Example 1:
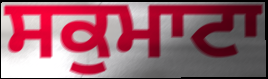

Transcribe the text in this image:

ਸਕੁਮਾਟਾ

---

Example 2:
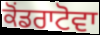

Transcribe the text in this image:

ਕੋਂਡਰਾਟੋਵਾ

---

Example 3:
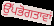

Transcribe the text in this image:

ਉੱਪਭੋਗਤਾਵਾਂ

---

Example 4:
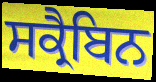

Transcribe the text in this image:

ਸਕ੍ਰੈਬਿਨ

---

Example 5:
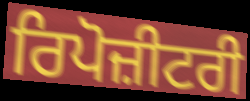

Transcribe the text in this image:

ਰਿਪੋਜ਼ੀਟਰੀ